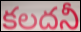
కలదనీ